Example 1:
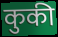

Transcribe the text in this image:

कुकी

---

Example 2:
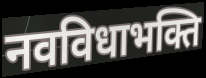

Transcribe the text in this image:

नवविधाभक्ति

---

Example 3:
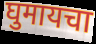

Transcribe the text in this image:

घुमायचा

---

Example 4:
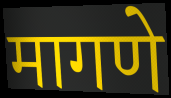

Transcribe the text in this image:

मागणे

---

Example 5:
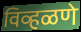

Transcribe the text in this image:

विव्हळणे